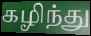
கழிந்து